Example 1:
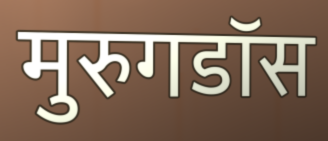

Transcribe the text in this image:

मुरुगडॉस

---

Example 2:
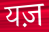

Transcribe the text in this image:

यज़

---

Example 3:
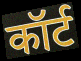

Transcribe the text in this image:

कॉर्ट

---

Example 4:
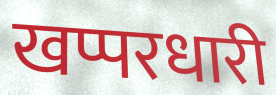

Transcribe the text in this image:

खप्परधारी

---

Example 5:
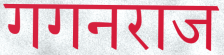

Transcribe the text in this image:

गगनराज